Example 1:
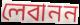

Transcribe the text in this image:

লেবানন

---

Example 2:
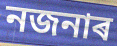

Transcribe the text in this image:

নজনাৰ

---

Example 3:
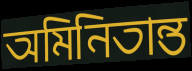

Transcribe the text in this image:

অমিনিতান্ত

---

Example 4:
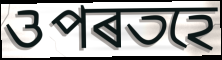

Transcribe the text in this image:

ওপৰতহে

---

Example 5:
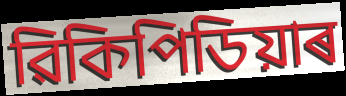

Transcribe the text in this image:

ৱিকিপিডিয়াৰ